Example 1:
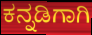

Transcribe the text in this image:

ಕನ್ನಡಿಗಾಗಿ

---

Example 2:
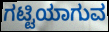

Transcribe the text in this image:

ಗಟ್ಟಿಯಾಗುವ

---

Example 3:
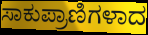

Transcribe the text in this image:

ಸಾಕುಪ್ರಾಣಿಗಳಾದ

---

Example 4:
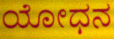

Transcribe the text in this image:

ಯೋಧನ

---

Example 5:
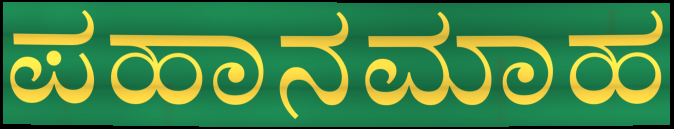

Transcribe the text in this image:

ಪಹಾನಮಾಹ